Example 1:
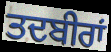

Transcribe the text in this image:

ਤਦਬੀਰਾਂ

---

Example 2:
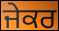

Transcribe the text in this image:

ਜੇਕਰ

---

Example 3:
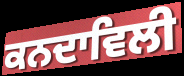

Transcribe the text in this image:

ਕਨਦਾਵਿਲੀ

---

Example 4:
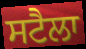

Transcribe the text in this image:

ਸਟੈਲਾ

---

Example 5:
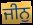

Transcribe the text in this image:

ਜੀਨੁ